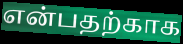
என்பதற்காக